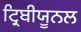
ਟ੍ਰਿਬੀਯੂਨਲ